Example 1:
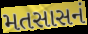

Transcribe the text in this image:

મતસાસનં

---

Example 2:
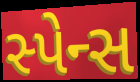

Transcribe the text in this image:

સ્પેન્સ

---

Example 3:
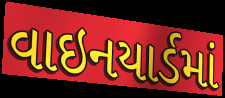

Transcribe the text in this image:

વાઇનયાર્ડમાં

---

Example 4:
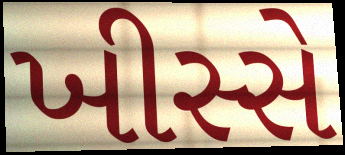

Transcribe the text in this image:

ખીસ્સે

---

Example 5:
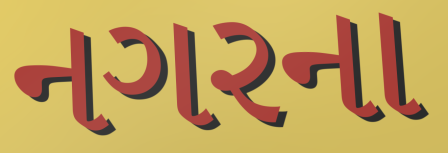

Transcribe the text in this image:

નગરના